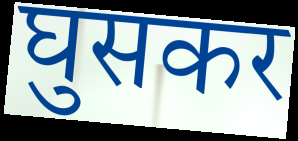
घुसकर